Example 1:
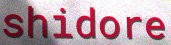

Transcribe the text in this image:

shidore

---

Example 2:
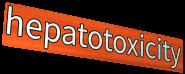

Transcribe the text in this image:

hepatotoxicity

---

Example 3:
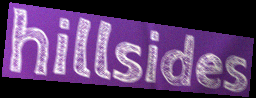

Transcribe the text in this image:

hillsides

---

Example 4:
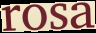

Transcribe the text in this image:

rosa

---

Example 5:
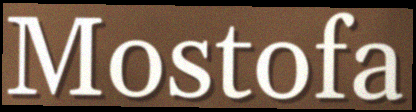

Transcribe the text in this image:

Mostofa